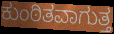
ಕುಂಠಿತವಾಗುತ್ತ